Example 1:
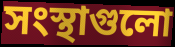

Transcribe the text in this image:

সংস্থাগুলো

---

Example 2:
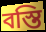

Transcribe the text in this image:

বস্তি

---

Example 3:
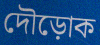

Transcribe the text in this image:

দৌড়োক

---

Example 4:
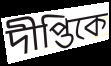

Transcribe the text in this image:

দীপ্তিকে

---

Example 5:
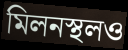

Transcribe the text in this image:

মিলনস্থলও